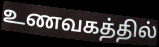
உணவகத்தில்